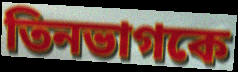
তিনভাগকে